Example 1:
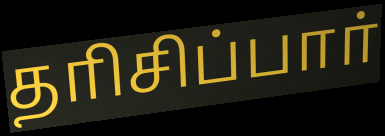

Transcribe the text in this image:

தரிசிப்பார்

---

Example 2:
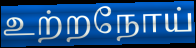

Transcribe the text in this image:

உற்றநோய்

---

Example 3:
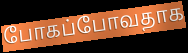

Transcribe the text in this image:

போகப்போவதாக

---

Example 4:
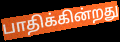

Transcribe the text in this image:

பாதிக்கின்றது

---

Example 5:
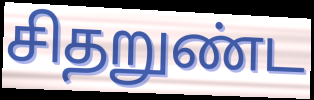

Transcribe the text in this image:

சிதறுண்ட